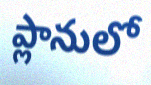
ప్లానులో